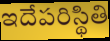
ఇదేపరిస్థితి